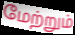
மேற்றும்